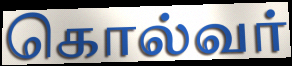
கொல்வர்